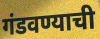
गंडवण्याची